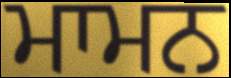
ਮਾਮਨ